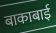
बाकाबाई